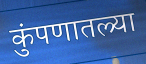
कुंपणातल्या